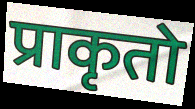
प्राकृतो